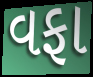
વફા